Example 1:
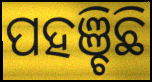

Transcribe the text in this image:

ପହଞ୍ଚିଛି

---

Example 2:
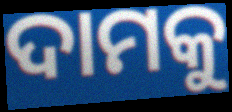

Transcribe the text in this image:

ଦାମକୁ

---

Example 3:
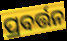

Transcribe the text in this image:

ପ୍ରବର୍ତ୍ତନ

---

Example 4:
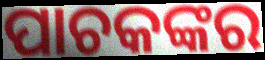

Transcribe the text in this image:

ପାଚକଙ୍କର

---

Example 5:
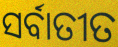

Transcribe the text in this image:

ସର୍ବାତୀତ